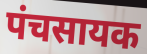
पंचसायक